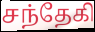
சந்தேகி